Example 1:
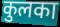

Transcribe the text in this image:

कुलका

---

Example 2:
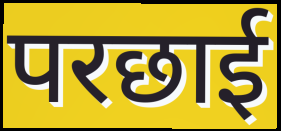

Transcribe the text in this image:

परछाई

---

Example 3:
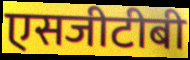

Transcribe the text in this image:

एसजीटीबी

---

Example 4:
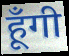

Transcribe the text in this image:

हूँगी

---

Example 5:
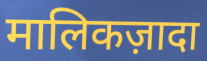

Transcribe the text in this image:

मालिकज़ादा